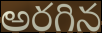
అరగిన